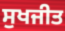
ਸੁਖਜੀਤ